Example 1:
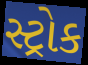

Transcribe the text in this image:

સ્ટ્રોક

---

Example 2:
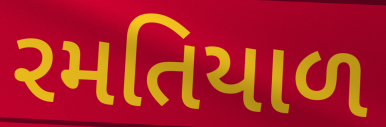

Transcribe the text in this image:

રમતિયાળ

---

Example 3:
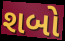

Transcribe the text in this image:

શબો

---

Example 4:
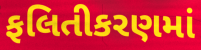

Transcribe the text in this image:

ફલિતીકરણમાં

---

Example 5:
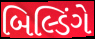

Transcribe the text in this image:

બિલ્ડિંગે